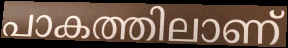
പാകത്തിലാണ്